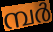
മ്പർ